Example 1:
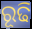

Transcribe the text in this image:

ରୂଢି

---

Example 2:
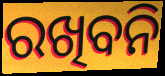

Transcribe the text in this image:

ରଖିବନି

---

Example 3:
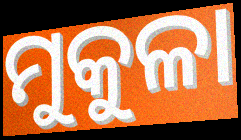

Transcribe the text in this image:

ମୁକୁଳା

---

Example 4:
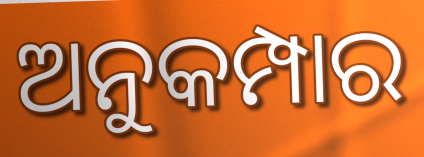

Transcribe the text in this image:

ଅନୁକମ୍ପାର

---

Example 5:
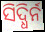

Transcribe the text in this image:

ସିଦ୍ଧିର୍ନ